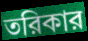
তরিকার